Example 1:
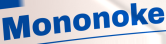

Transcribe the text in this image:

Mononoke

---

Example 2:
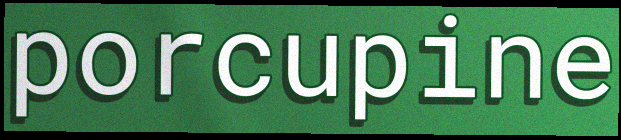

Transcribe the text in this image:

porcupine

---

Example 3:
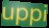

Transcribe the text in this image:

uppi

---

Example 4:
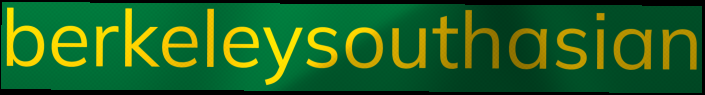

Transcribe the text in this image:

berkeleysouthasian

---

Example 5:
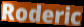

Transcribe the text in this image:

Roderic